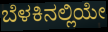
ಬೆಳಕಿನಲ್ಲಿಯೇ